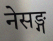
नेसङ्ग